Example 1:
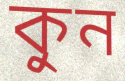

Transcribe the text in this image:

কুন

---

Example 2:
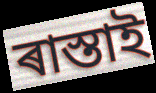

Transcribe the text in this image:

ৰাস্তাই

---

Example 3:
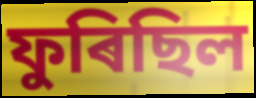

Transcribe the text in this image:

ফুৰিছিল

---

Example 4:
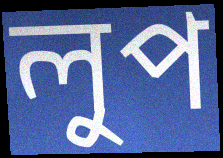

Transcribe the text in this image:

লুপ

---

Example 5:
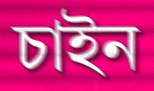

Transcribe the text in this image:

চাইন